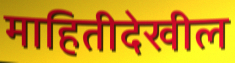
माहितीदेखील